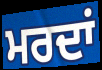
ਮਰਦਾਂ